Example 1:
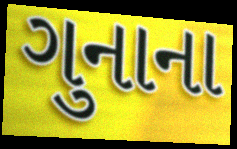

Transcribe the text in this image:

ગુનાના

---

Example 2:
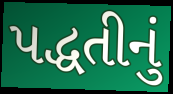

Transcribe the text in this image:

પદ્ધતીનું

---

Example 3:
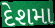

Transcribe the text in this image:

દેશમા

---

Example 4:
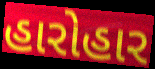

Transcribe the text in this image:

હારોહાર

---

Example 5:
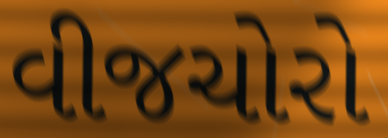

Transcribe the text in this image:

વીજચોરો